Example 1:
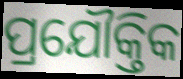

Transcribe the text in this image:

ପ୍ରଯୌକ୍ତିକ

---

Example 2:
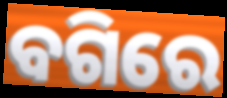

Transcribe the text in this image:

ବଗିରେ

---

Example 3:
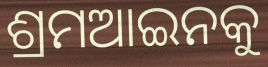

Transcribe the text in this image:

ଶ୍ରମଆଇନକୁ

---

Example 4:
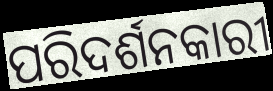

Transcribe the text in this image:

ପରିଦର୍ଶନକାରୀ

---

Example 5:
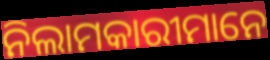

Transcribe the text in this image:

ନିଲାମକାରୀମାନେ